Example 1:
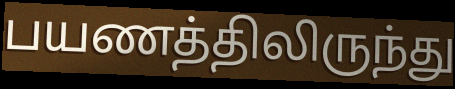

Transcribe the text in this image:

பயணத்திலிருந்து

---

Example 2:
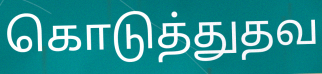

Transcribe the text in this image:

கொடுத்துதவ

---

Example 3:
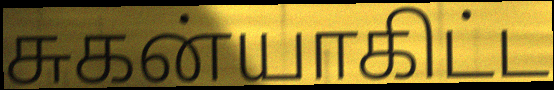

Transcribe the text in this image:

சுகன்யாகிட்ட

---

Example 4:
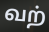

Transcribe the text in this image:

வற்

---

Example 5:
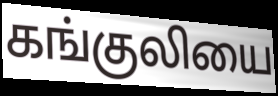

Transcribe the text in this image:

கங்குலியை